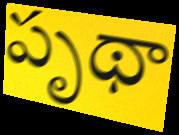
పృథా